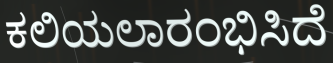
ಕಲಿಯಲಾರಂಭಿಸಿದೆ